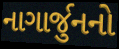
નાગાર્જુનનો